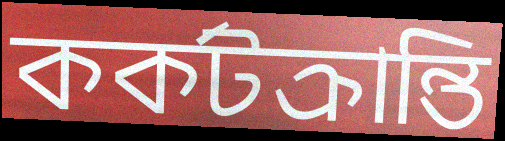
কর্কটক্রান্তি